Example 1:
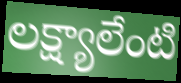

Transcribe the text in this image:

లక్ష్యాలేంటి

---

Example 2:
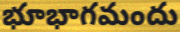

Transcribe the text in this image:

భూభాగమందు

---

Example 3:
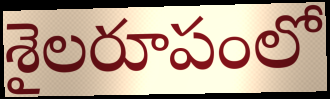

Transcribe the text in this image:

శైలరూపంలో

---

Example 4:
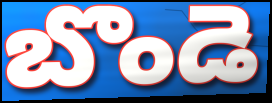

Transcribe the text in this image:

బొండె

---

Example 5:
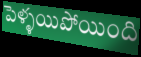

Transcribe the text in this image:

పెళ్ళయిపోయింది